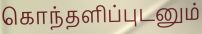
கொந்தளிப்புடனும்